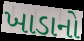
ખાડાનો